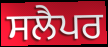
ਸਲੈਪਰ